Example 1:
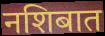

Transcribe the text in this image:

नशिबात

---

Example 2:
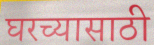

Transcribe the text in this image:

घरच्यासाठी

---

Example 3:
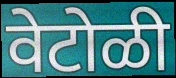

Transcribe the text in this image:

वेटोळी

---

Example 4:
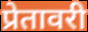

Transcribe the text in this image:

प्रेतावरी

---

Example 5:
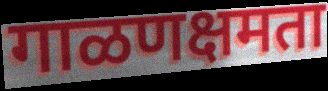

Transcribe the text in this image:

गाळणक्षमता